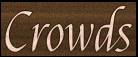
Crowds